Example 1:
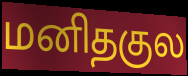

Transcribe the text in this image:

மனிதகுல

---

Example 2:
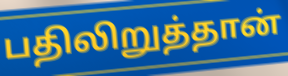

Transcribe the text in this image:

பதிலிறுத்தான்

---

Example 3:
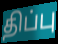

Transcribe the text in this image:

திப்பு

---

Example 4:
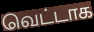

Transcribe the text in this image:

வெட்டாக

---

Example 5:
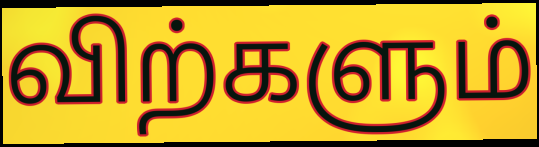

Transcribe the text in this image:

விற்களும்